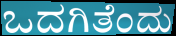
ಒದಗಿತೆಂದು